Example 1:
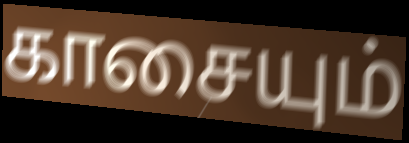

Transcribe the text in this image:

காசையும்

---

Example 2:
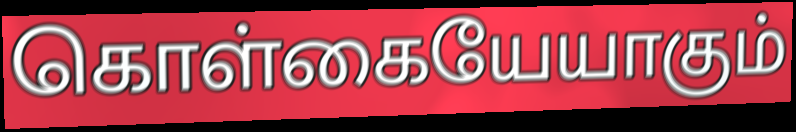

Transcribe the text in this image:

கொள்கையேயாகும்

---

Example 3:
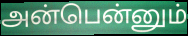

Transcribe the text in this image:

அன்பென்னும்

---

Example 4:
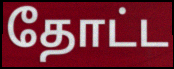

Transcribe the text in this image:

தோட்ட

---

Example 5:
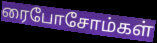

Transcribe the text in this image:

ரைபோசோம்கள்